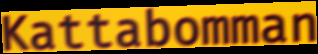
Kattabomman